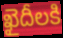
ఖైదీలకి